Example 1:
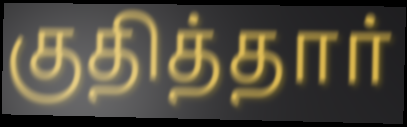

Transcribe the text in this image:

குதித்தார்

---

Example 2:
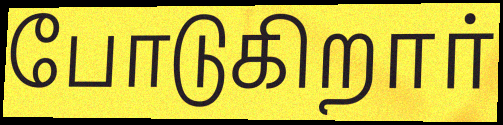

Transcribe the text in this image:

போடுகிறார்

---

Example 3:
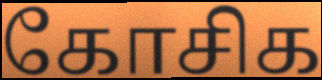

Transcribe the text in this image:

கோசிக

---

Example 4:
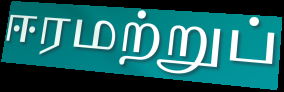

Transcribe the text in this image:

ஈரமற்றுப்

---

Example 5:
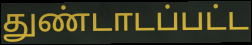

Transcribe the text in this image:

துண்டாடப்பட்ட